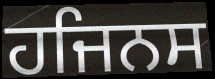
ਹਜਿਨਸ